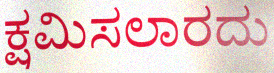
ಕ್ಷಮಿಸಲಾರದು